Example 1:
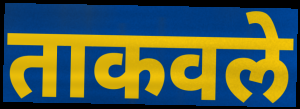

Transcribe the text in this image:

ताकवले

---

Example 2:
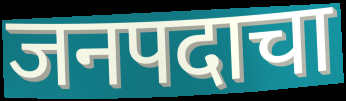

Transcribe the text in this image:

जनपदाचा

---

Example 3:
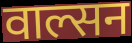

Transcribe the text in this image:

वाल्सन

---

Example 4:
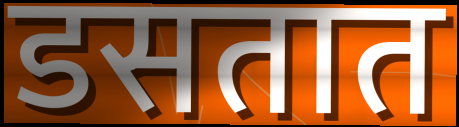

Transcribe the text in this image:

डसतात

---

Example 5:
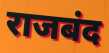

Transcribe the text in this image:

राजबंद